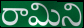
రామిని